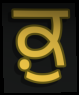
ਕ਼ੁ